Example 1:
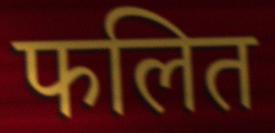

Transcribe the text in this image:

फलित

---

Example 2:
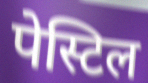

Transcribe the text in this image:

पेस्टिल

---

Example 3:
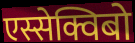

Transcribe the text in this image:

एस्सेक्विबो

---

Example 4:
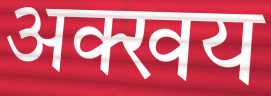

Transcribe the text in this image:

अक्खय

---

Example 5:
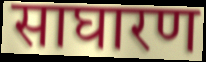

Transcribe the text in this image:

साघारण